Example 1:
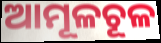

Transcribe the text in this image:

ଆମୂଳଚୂଳ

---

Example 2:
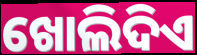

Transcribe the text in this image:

ଖୋଲିଦିଏ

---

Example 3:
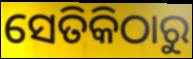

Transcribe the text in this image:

ସେତିକିଠାରୁ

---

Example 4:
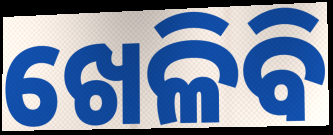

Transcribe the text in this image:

ଖେଳିବି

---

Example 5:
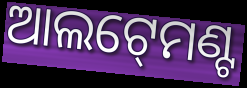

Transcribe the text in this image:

ଆଲଟ୍‍ମେଣ୍ଟ